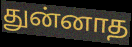
துன்னாத